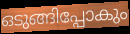
ഒടുങ്ങിപ്പോകും